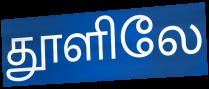
தூளிலே